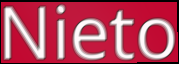
Nieto